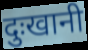
दुःखानी